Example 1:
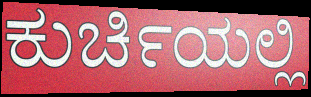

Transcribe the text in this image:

ಕುರ್ಚಿಯಲ್ಲಿ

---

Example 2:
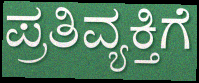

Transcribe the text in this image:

ಪ್ರತಿವ್ಯಕ್ತಿಗೆ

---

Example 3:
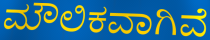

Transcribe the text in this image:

ಮೌಲಿಕವಾಗಿವೆ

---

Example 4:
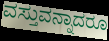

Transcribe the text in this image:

ವಸ್ತುವನ್ನಾದರೂ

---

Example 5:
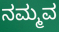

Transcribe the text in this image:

ನಮ್ಮವ